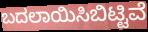
ಬದಲಾಯಿಸಿಬಿಟ್ಟಿವೆ